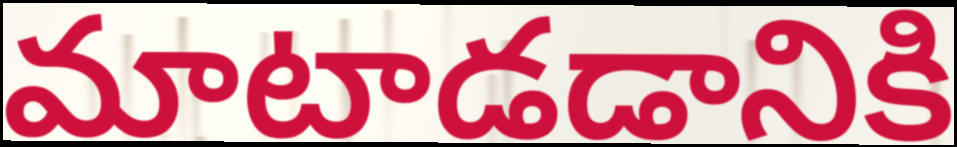
మాటాడడానికి